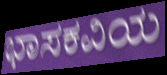
ಭಾಸಕವಿಯ